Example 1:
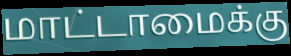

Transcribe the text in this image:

மாட்டாமைக்கு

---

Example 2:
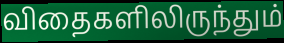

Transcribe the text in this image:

விதைகளிலிருந்தும்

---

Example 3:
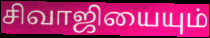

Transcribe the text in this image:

சிவாஜியையும்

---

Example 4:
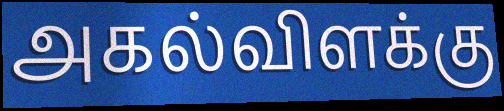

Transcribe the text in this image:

அகல்விளக்கு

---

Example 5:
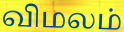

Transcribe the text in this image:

விமலம்